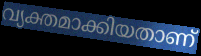
വ്യക്തമാക്കിയതാണ്